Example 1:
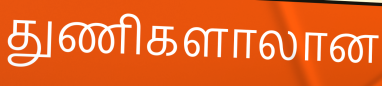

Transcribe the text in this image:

துணிகளாலான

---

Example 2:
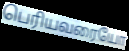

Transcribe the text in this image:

பெரியவரையோ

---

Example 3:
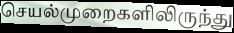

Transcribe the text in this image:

செயல்முறைகளிலிருந்து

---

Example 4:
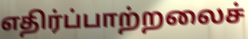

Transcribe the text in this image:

எதிர்ப்பாற்றலைச்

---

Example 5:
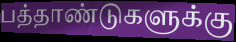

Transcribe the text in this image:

பத்தாண்டுகளுக்கு